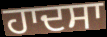
ਹਾਦਸਾ